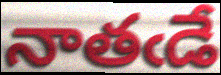
నాతఁడే